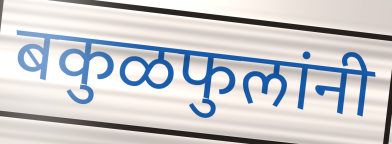
बकुळफुलांनी